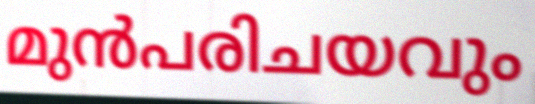
മുൻപരിചയവും